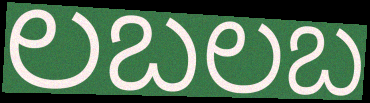
లబలబ